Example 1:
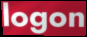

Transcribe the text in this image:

logon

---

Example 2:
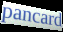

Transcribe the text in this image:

pancard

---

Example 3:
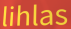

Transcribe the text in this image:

lihlas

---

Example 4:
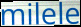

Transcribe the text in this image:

milele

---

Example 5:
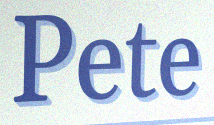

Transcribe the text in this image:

Pete